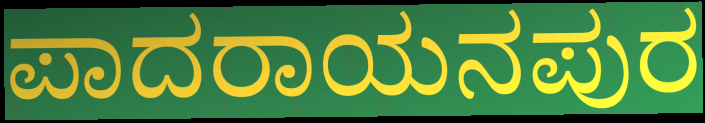
ಪಾದರಾಯನಪುರ